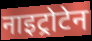
नाइट्रोटेन